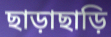
ছাড়াছাড়ি